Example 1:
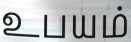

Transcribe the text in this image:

உபயம்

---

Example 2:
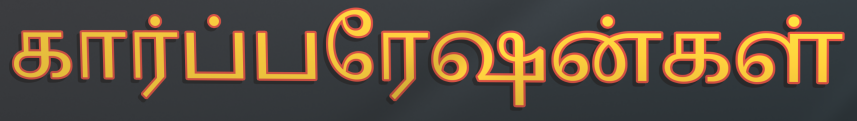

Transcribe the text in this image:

கார்ப்பரேஷன்கள்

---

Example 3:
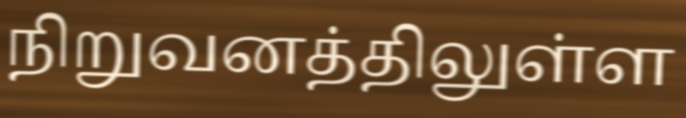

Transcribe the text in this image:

நிறுவனத்திலுள்ள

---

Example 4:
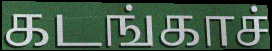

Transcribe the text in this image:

கடங்காச்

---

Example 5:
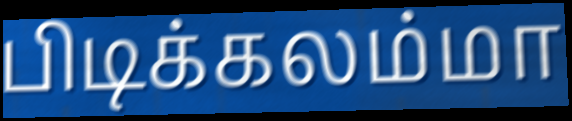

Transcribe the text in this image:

பிடிக்கலம்மா